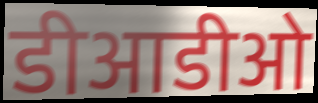
डीआडीओ